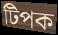
টিপক